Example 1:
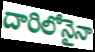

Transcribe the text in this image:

దారిలోనైనా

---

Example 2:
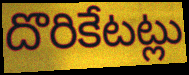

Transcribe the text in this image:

దొరికేటట్లు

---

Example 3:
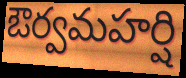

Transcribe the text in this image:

ఔర్వమహర్షి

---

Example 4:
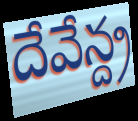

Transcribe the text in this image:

దేవేన్ద్ర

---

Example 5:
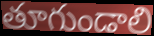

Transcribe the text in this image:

తూగుండాలి